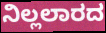
ನಿಲ್ಲಲಾರದ